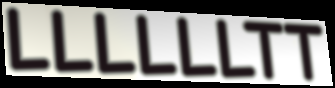
LLLLLLTT